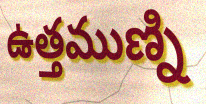
ఉత్తముణ్ని